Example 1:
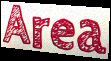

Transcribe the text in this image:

Area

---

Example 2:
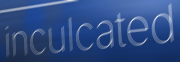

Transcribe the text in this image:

inculcated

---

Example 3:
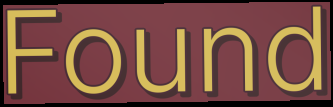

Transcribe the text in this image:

Found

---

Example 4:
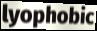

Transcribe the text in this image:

lyophobic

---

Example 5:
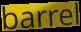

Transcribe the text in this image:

barrel